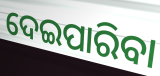
ଦେଇପାରିବା